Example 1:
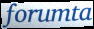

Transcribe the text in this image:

forumta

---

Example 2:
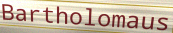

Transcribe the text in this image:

Bartholomaus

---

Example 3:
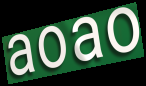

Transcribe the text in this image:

aoao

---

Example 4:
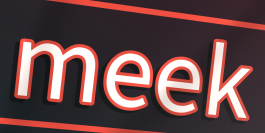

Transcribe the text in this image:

meek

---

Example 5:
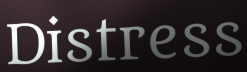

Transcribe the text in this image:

Distress